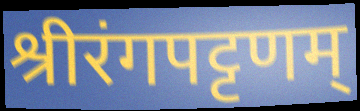
श्रीरंगपट्टणम्